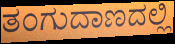
ತಂಗುದಾಣದಲ್ಲಿ